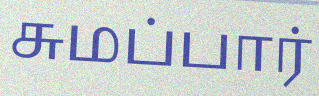
சுமப்பார்